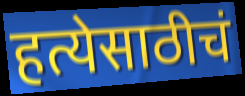
हत्येसाठीचं